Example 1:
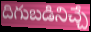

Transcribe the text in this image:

దిగుబడినిచ్చే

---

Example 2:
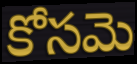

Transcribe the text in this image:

కోసమె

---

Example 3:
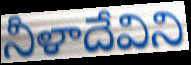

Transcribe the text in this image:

నీళాదేవిని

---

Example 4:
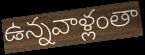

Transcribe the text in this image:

ఉన్నవాళ్లంతా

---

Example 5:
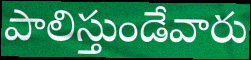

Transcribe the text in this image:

పాలిస్తుండేవారు